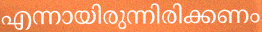
എന്നായിരുന്നിരിക്കണം